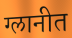
ग्लानीत